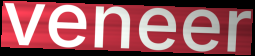
veneer